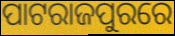
ପାଟରାଜପୁରରେ